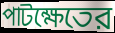
পাটক্ষেতের